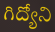
గిద్యోని